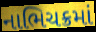
નાભિચક્રમાં